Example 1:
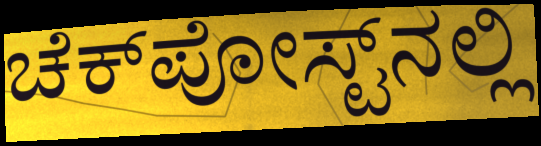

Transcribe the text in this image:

ಚೆಕ್‌ಪೋಸ್ಟ್‌ನಲ್ಲಿ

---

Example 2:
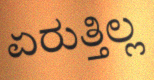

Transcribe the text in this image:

ಏರುತ್ತಿಲ್ಲ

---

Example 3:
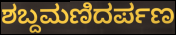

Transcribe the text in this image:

ಶಬ್ದಮಣಿದರ್ಪಣ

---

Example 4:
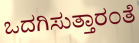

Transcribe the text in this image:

ಒದಗಿಸುತ್ತಾರಂತೆ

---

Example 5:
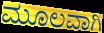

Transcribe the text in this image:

ಮೂಲವಾಗಿ